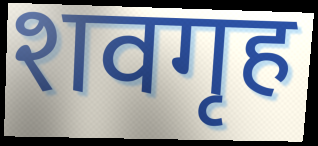
शवगृह